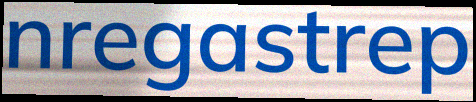
nregastrep